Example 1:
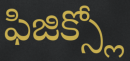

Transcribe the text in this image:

ఫిజిక్స్లో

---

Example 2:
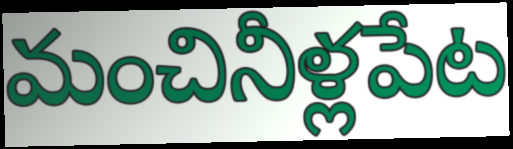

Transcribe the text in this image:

మంచినీళ్లపేట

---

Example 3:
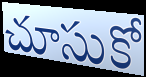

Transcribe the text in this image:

చూసుకో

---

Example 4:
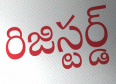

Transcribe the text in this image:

రిజిస్టర్డ్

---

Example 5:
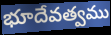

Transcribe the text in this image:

భూదేవత్వము